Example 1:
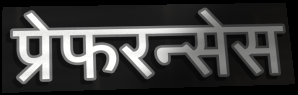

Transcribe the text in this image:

प्रेफरन्सेस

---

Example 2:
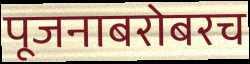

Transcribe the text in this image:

पूजनाबरोबरच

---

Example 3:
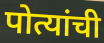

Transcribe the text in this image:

पोत्यांची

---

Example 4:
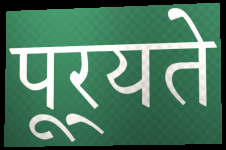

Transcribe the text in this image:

पूर्यते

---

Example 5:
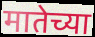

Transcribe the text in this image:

मातेच्या